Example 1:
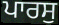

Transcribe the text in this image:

ਪਾਰਸੁ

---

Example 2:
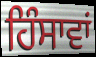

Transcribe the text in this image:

ਹਿੰਸਾਵਾਂ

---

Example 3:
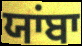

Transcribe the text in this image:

ਯਾਂਬਾ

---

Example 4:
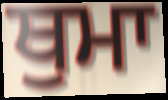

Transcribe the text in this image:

ਥੁਮਾ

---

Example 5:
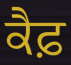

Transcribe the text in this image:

ਕੈਫ਼